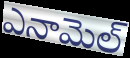
ఎనామెల్